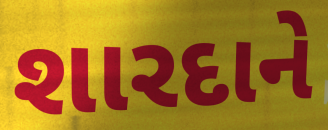
શારદાને